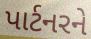
પાર્ટનરને